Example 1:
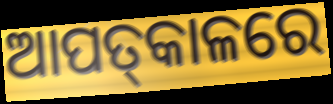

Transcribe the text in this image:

ଆପତ୍‌କାଳରେ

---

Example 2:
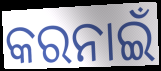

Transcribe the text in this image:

କରନାଇଁ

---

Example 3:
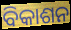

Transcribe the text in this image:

ବିକାଶନ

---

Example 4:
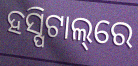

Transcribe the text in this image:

ହସ୍ପିଟାଲ୍‌ରେ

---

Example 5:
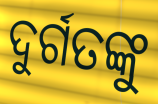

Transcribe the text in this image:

ଦୁର୍ଗତଙ୍କୁ